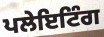
ਪਲੇਇਟਿੰਗ